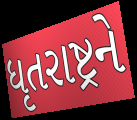
ધૃતરાષ્ટ્રને